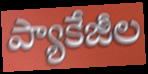
ప్యాకేజీల